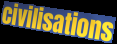
civilisations